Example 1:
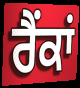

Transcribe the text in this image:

ਰੈਂਕਾਂ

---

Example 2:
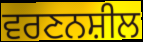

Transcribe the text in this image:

ਵਰਣਨਸ਼ੀਲ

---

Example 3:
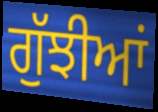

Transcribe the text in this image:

ਗੁੱਝੀਆਂ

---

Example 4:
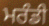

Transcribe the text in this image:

ਮਰੰਡੀ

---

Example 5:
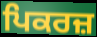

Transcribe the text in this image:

ਪਿਕਰਜ਼